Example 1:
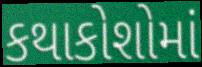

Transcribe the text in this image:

કથાકોશોમાં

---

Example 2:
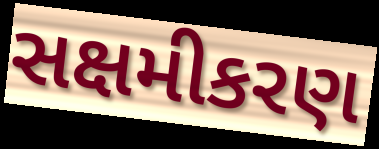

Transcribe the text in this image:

સક્ષમીકરણ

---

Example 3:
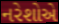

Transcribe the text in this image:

નરેશોએ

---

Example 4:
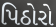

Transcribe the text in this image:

પિઠોરો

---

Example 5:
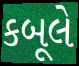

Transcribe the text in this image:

કબૂલે